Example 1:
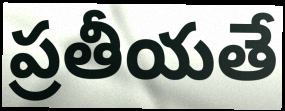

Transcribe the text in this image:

ప్రతీయతే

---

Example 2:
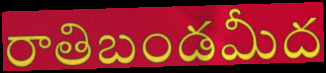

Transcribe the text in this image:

రాతిబండమీద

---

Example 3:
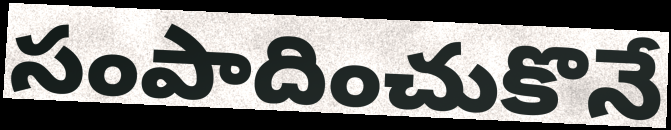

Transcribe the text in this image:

సంపాదించుకొనే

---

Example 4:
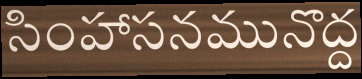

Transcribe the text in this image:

సింహాసనమునొద్ద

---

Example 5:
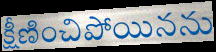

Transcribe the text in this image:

క్షీణించిపోయినను